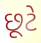
છૂટે